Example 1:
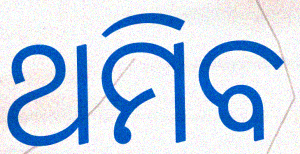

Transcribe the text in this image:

ଥମିବ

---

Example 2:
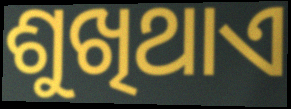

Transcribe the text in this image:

ଶୁଖିଥାଏ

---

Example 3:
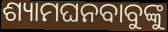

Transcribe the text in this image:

ଶ୍ୟାମଘନବାବୁଙ୍କୁ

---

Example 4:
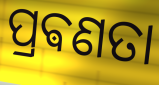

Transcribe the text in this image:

ପ୍ରଵଣତା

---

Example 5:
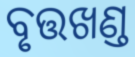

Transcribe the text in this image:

ବୃତ୍ତଖଣ୍ଡ